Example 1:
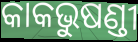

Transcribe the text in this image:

କାକଭୁଷଣ୍ଡୀ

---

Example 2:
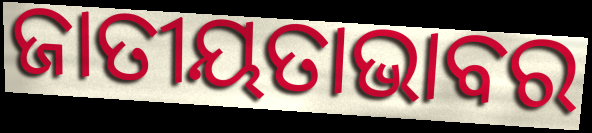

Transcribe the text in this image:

ଜାତୀୟତାଭାବର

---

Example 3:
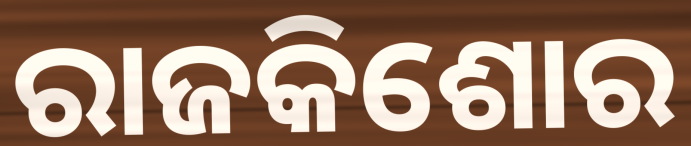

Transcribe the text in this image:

ରାଜକିଶୋର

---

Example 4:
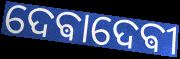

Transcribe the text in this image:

ଦେଵାଦେଵୀ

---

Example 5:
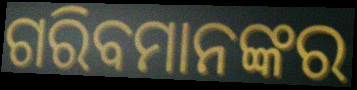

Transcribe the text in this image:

ଗରିବମାନଙ୍କର